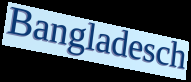
Bangladesch